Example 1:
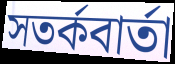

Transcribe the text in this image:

সতর্কবার্তা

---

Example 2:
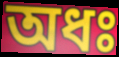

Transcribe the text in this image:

অধঃ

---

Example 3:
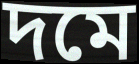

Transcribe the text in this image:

দমে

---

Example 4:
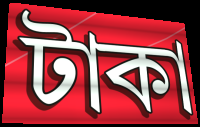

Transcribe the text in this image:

টাকা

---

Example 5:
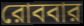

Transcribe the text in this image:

রোববার